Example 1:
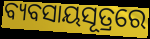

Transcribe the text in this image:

ବ୍ୟବସାୟସୂତ୍ରରେ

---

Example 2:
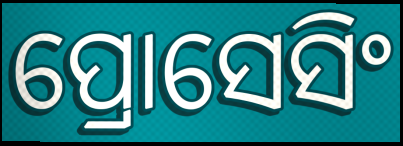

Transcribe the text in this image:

ପ୍ରୋସେସିଂ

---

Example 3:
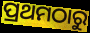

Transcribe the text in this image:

ପ୍ରଥମଠାରୁ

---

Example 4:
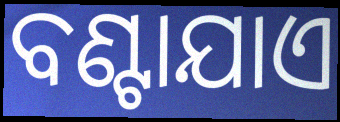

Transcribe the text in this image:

ବଣ୍ଟାଯାଏ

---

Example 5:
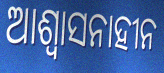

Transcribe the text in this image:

ଆଶ୍ୱାସନାହୀନ